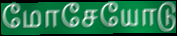
மோசேயோடு